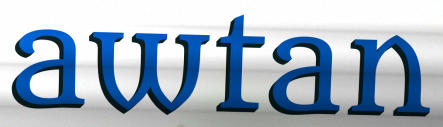
awtan